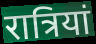
रात्रियां